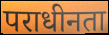
पराधीनता